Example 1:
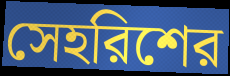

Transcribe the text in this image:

সেহরিশের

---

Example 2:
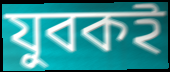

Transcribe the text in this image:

যুবকই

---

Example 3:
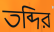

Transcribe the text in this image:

তব্দির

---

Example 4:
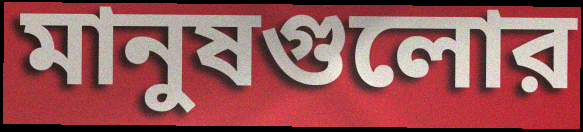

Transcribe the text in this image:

মানুষগুলোর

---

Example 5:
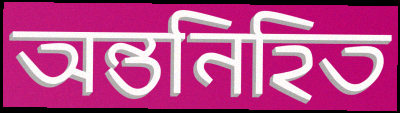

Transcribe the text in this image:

অন্তনিহিত